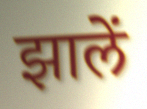
झालें